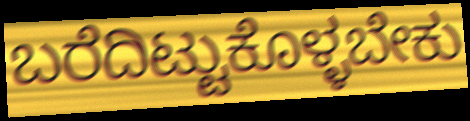
ಬರೆದಿಟ್ಟುಕೊಳ್ಳಬೇಕು